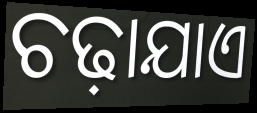
ଚଢ଼ାଯାଏ